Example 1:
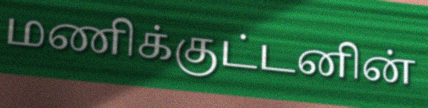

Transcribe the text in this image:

மணிக்குட்டனின்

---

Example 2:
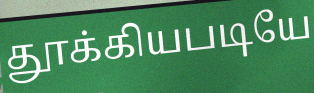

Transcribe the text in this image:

தூக்கியபடியே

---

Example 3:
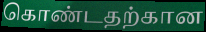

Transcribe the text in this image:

கொண்டதற்கான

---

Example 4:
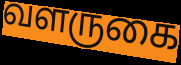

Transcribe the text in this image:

வளருகை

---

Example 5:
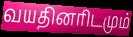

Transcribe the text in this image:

வயதினரிடமும்